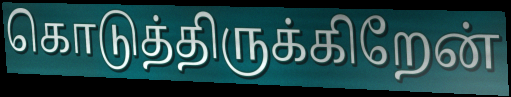
கொடுத்திருக்கிறேன்